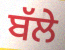
ਬੱਲੇ